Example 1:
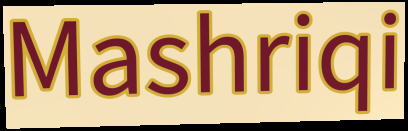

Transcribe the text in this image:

Mashriqi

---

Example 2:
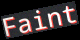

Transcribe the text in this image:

Faint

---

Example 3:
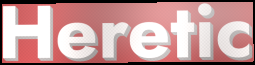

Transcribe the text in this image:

Heretic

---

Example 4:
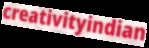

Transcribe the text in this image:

creativityindian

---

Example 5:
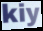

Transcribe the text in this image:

kiy